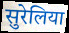
सुरेलिया